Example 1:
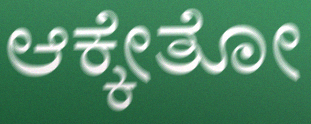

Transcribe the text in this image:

ಆಕ್ಕೇತೋ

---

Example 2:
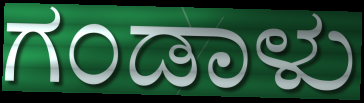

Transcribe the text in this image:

ಗಂಡಾಳು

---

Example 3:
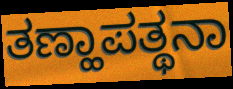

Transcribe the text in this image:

ತಣ್ಹಾಪತ್ಥನಾ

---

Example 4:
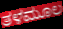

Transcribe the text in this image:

ತಳಮೂಲ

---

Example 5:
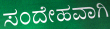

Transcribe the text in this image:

ಸಂದೇಹವಾಗಿ